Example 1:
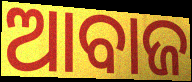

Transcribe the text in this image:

ଆବାଜ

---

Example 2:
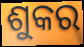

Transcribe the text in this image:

ଶୁକର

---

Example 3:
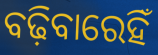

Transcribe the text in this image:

ବଢ଼ିବାରେହିଁ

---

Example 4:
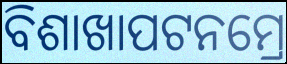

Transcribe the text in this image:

ବିଶାଖାପଟନମ୍ରେ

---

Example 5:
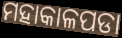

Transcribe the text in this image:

ମହାକାଳପଡା